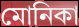
মোনিকা